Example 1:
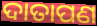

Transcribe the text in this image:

ଦାତାପଣ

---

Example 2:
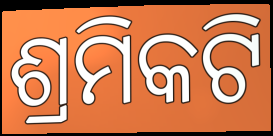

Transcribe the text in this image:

ଶ୍ରମିକଟି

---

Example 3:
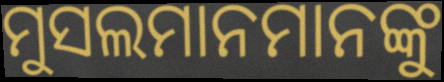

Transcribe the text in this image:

ମୁସଲମାନମାନଙ୍କୁ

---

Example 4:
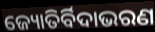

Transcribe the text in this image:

ଜ୍ୟୋତିର୍ବିଦାଭରଣ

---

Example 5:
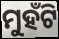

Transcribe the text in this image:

ମୁହଁଟି